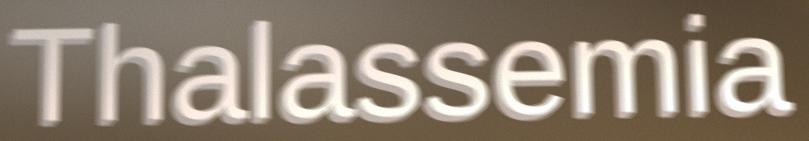
Thalassemia